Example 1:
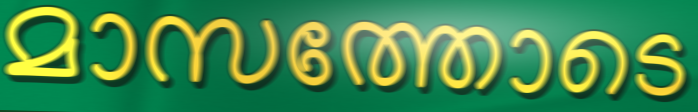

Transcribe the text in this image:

മാസത്തോടെ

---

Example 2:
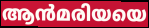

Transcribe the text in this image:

ആൻമരിയയെ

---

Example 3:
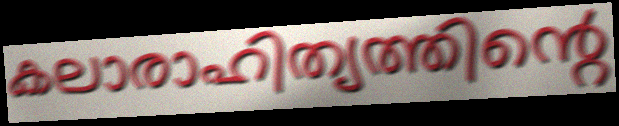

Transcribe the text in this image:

കലാരാഹിത്യത്തിന്റെ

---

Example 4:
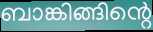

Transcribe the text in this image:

ബാങ്കിങ്ങിന്റെ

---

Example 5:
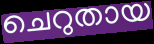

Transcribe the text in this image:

ചെറുതായ